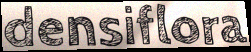
densiflora